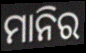
ମାନିର